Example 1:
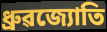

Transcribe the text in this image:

ধ্ৰুৱজ্যোতি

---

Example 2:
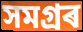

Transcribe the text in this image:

সমগ্ৰৰ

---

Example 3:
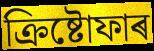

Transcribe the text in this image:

ক্ৰিষ্টোফাৰ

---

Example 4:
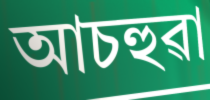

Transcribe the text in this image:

আচহুৱা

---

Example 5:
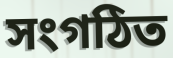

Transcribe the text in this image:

সংগঠিত